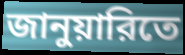
জানুয়ারিতে